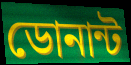
ডোনান্ট